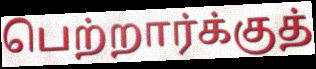
பெற்றார்க்குத்